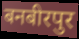
बनबीरपुर